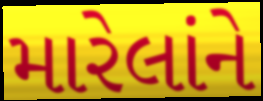
મારેલાંને